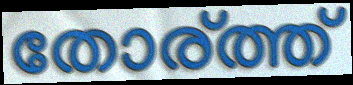
തോര്ത്ത്